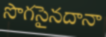
సొగసైనదానా